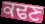
ਕਢਣ